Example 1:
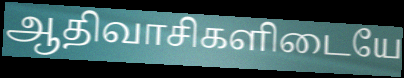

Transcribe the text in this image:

ஆதிவாசிகளிடையே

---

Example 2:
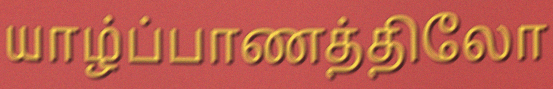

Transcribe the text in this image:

யாழ்ப்பாணத்திலோ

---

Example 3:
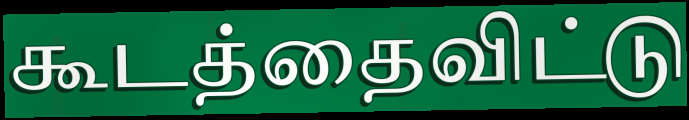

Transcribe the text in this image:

கூடத்தைவிட்டு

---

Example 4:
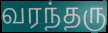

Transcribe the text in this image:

வரந்தரு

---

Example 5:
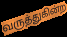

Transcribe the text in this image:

வருத்துகின்ற